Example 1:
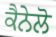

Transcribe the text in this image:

ਕੈਨੇਲੋ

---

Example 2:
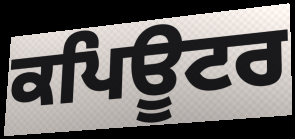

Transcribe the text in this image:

ਕਪਿਊਟਰ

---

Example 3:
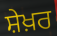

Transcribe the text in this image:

ਸ਼ੇਖ਼ਰ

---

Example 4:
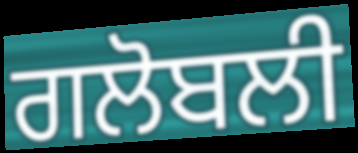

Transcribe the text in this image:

ਗਲੋਬਲੀ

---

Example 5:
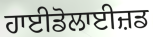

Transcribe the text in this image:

ਹਾਈਡੋਲਾਈਜ਼ਡ